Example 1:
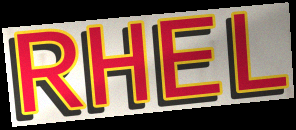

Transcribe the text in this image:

RHEL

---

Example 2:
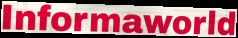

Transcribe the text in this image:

Informaworld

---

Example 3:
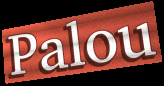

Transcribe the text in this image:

Palou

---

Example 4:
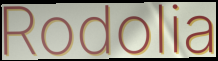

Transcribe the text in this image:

Rodolia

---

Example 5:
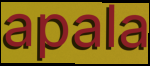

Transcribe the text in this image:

apala